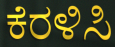
ಕೆರಳಿಸಿ